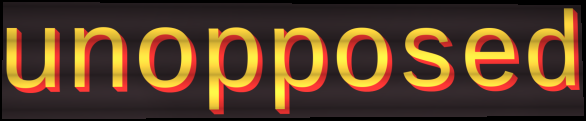
unopposed